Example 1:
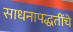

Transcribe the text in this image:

साधनापद्धतींचे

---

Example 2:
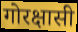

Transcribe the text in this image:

गोरक्षासी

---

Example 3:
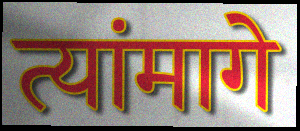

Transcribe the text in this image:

त्यांमागे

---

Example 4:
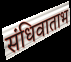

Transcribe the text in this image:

संधिवाताभ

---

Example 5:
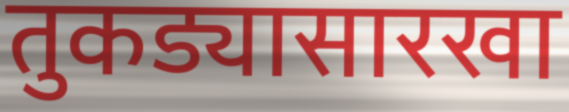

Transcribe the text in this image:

तुकड्यासारखा